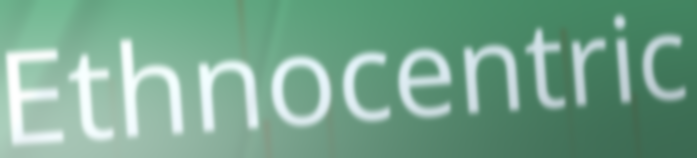
Ethnocentric